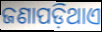
ଜଣାପଡ଼ିଥାଏ